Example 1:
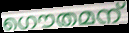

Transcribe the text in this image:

ഗൌതമന്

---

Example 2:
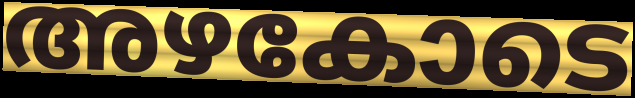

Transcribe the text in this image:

അഴകോടെ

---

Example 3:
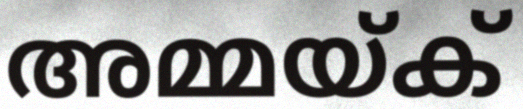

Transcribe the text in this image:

അമ്മയ്ക്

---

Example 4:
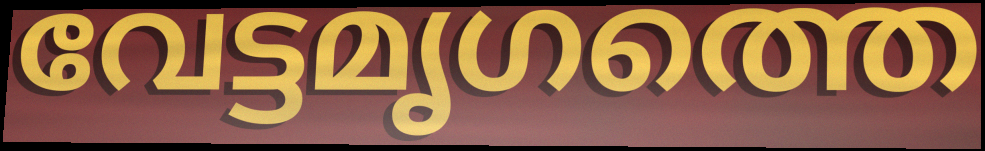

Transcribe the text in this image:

വേട്ടമൃഗത്തെ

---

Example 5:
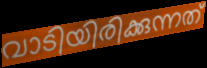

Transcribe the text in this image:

വാടിയിരിക്കുന്നത്